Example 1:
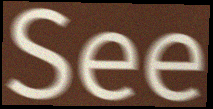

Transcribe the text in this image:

See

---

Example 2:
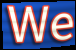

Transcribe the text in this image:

We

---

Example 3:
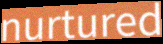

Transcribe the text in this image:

nurtured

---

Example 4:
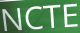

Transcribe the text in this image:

NCTE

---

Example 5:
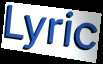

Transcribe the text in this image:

Lyric